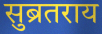
सुब्रतराय